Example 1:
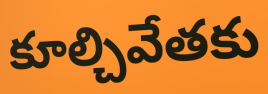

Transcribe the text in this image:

కూల్చివేతకు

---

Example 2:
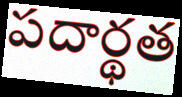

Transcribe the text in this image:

పదార్థత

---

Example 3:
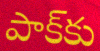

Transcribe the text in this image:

పాక్‌కు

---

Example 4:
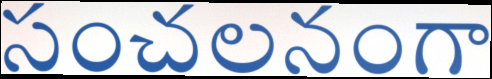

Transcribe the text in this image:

సంచలనంగా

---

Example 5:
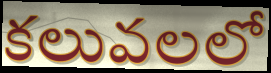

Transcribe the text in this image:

కలువలలో